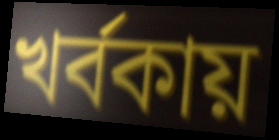
খর্বকায়